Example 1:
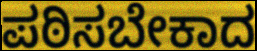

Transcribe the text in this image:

ಪಠಿಸಬೇಕಾದ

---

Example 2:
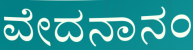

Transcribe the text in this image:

ವೇದನಾನಂ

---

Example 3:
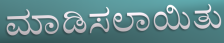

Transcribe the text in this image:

ಮಾಡಿಸಲಾಯಿತು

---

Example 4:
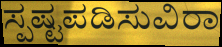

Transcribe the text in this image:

ಸ್ಪಷ್ಟಪಡಿಸುವಿರಾ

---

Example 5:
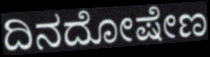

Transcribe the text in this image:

ದಿನದೋಷೇಣ